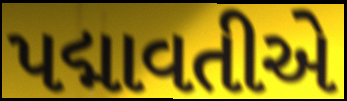
પદ્માવતીએ